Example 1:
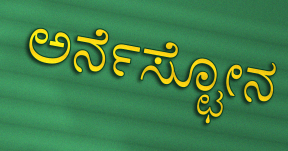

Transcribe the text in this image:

ಅರ್ನೆಸ್ಟೋನ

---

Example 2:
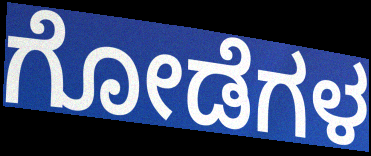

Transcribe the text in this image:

ಗೋಡೆಗಳ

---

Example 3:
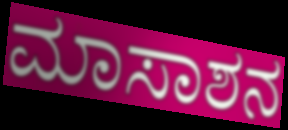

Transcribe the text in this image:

ಮಾಸಾಶನ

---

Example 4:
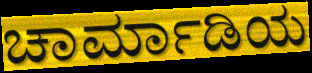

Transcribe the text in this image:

ಚಾರ್ಮಾಡಿಯ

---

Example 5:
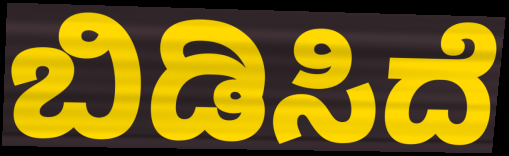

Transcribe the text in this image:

ಬಿಡಿಸಿದೆ